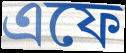
এফে